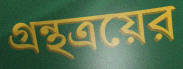
গ্রন্থত্রয়ের